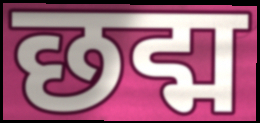
छद्म